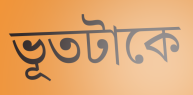
ভূতটাকে